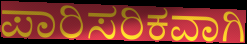
ಪಾರಿಸರಿಕವಾಗಿ